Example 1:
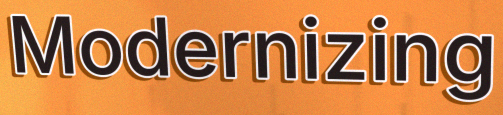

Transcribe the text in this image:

Modernizing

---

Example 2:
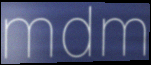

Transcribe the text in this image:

mdm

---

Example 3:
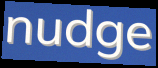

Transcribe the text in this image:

nudge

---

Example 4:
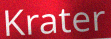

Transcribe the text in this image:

Krater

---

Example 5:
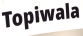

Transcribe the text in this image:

Topiwala